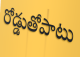
రోడ్డుతోపాటు